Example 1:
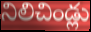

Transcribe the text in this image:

నిలిచిండ్లు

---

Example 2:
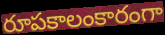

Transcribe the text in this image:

రూపకాలంకారంగా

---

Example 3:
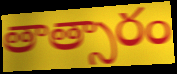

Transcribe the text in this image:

తాత్సారం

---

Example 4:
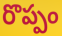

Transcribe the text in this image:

రొప్పం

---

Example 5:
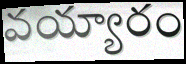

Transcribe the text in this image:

వయ్యారం